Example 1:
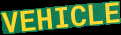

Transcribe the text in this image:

VEHICLE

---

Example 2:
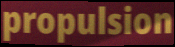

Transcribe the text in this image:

propulsion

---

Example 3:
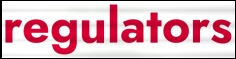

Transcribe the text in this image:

regulators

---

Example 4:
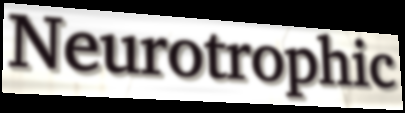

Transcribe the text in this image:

Neurotrophic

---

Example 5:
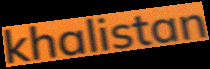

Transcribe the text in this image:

khalistan